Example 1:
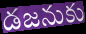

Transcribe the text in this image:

డజనుకు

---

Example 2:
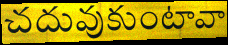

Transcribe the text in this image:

చదువుకుంటావా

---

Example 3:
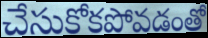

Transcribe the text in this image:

చేసుకోకపోవడంతో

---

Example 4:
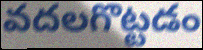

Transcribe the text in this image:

వదలగొట్టడం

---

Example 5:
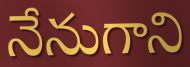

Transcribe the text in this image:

నేనుగాని